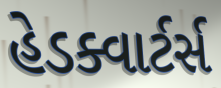
હેડક્વાર્ટર્સ